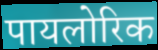
पायलोरिक